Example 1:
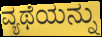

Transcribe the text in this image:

ವ್ಯಥೆಯನ್ನು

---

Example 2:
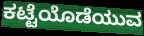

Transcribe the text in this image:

ಕಟ್ಟೆಯೊಡೆಯುವ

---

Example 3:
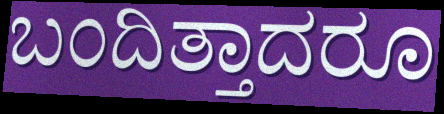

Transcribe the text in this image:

ಬಂದಿತ್ತಾದರೂ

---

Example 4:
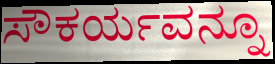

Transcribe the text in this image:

ಸೌಕರ್ಯವನ್ನೂ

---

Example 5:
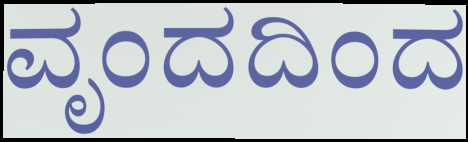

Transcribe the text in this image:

ವೃಂದದಿಂದ